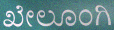
ಖೇಲೂಂಗಿ